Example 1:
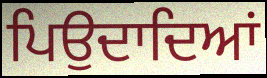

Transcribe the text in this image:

ਪਿਉਦਾਦਿਆਂ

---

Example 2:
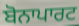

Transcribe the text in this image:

ਬੋਨਾਪਾਰਟ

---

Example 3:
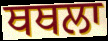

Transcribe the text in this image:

ਥਥਲਾ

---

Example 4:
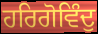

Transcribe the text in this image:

ਹਰਿਗੋਵਿੰਦੁ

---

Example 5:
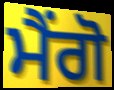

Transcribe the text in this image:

ਮੈਂਗੋ